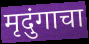
मृदुंगाचा